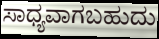
ಸಾಧ್ಯವಾಗಬಹುದು